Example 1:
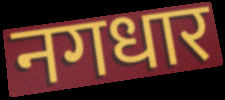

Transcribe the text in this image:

नगधार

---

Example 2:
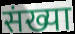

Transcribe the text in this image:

संख्‍या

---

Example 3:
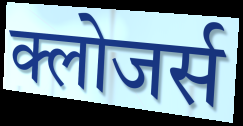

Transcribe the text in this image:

क्लोजर्स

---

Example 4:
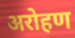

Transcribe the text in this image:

अरोहण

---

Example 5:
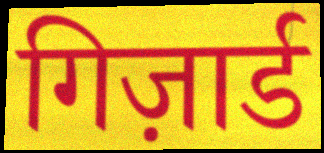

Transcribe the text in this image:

गिज़ार्ड